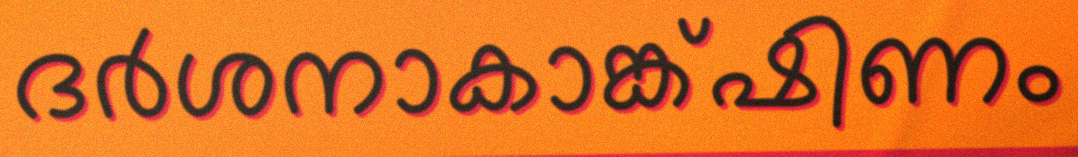
ദർശനാകാങ്ക്ഷിണം